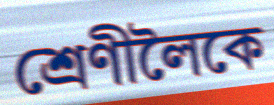
শ্ৰেণীলৈকে